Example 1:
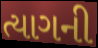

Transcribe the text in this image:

ત્યાગની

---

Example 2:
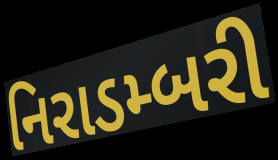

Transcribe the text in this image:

નિરાડમ્બરી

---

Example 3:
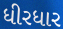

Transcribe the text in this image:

ધીરધાર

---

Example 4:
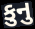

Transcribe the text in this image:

કુનુ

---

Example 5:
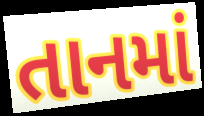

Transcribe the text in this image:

તાનમાં